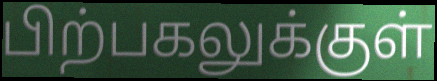
பிற்பகலுக்குள்